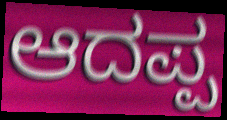
ಆದಪ್ಪ